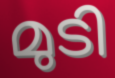
മുടി